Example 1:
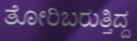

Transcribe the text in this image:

ತೋರಿಬರುತ್ತಿದ್ದ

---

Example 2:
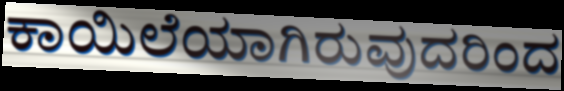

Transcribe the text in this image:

ಕಾಯಿಲೆಯಾಗಿರುವುದರಿಂದ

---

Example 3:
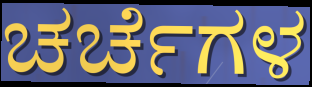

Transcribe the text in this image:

ಚರ್ಚೆಗಳ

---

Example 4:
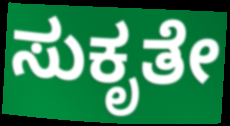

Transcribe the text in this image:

ಸುಕೃತೇ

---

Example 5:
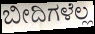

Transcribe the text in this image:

ಬೀದಿಗಳೆಲ್ಲ